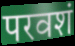
परवशं